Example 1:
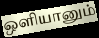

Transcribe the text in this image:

ஒளியானும்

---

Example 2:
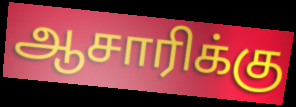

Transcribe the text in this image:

ஆசாரிக்கு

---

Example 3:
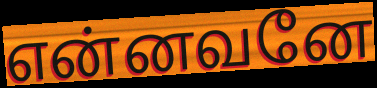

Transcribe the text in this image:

என்னவனே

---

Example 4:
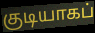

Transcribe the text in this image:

குடியாகப்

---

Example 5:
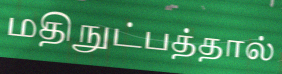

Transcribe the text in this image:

மதிநுட்பத்தால்